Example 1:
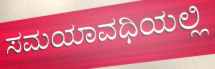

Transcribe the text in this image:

ಸಮಯಾವಧಿಯಲ್ಲಿ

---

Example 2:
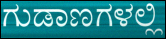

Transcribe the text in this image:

ಗುಡಾಣಗಳಲ್ಲಿ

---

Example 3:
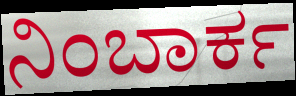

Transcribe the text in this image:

ನಿಂಬಾರ್ಕ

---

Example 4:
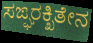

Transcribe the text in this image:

ಸಙ್ಘರಕ್ಖಿತೇನ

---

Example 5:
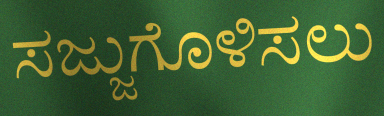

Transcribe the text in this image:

ಸಜ್ಜುಗೊಳಿಸಲು